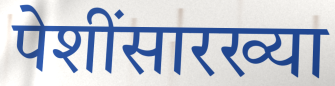
पेशींसारख्या